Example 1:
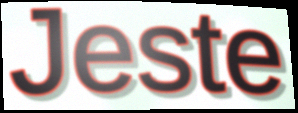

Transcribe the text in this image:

Jeste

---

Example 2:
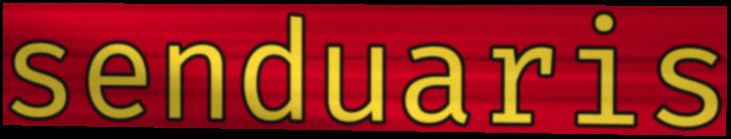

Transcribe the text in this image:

senduaris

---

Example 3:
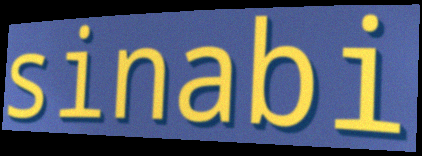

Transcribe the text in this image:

sinabi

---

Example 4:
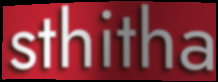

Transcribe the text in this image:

sthitha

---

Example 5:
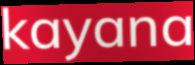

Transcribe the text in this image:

kayana